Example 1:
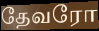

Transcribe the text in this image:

தேவரோ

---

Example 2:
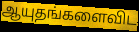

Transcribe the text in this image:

ஆயுதங்களைவிட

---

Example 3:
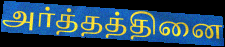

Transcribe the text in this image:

அர்த்தத்தினை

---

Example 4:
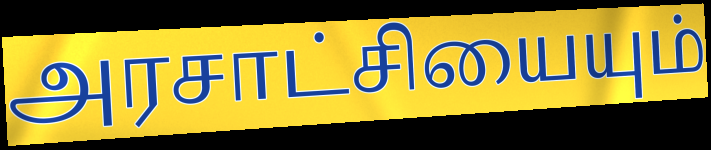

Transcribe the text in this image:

அரசாட்சியையும்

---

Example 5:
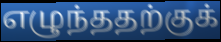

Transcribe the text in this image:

எழுந்ததற்குக்